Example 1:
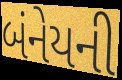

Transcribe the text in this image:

બંનેયની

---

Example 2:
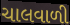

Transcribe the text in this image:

ચાલવાળી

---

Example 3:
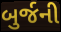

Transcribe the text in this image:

બુર્જની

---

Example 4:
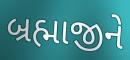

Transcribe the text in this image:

બ્રહ્માજીને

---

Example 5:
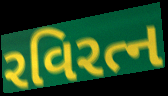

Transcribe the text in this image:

રવિરત્ન